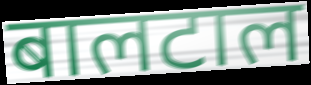
बालटाल